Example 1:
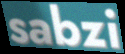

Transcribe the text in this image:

sabzi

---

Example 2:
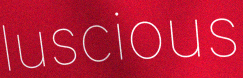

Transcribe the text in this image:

luscious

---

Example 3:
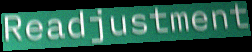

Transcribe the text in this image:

Readjustment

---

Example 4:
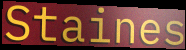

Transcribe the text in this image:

Staines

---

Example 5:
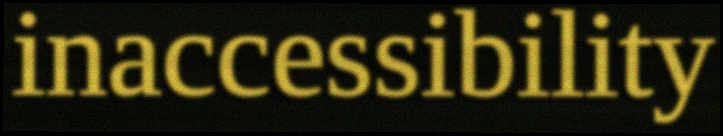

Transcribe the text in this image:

inaccessibility